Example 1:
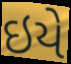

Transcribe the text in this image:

ઇયે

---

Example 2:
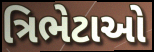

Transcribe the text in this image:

ત્રિભેટાઓ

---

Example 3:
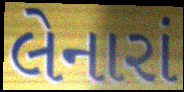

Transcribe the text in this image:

લેનારાં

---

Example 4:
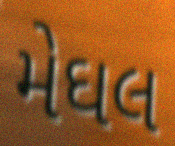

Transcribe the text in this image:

મેઘલ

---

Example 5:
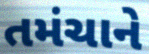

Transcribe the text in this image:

તમંચાને